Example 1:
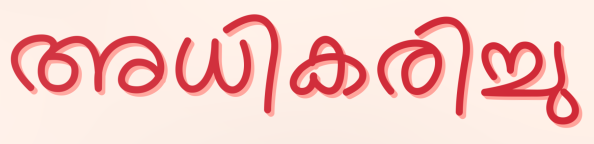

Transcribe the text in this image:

അധികരിച്ചു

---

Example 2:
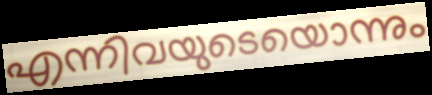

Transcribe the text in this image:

എന്നിവയുടെയൊന്നും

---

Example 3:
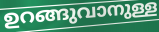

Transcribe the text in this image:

ഉറങ്ങുവാനുള്ള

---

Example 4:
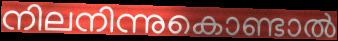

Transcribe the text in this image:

നിലനിന്നുകൊണ്ടാൽ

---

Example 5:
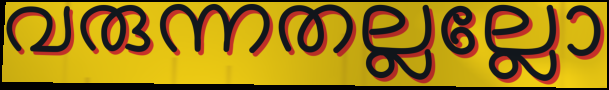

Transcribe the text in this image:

വരുന്നതല്ലല്ലോ